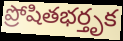
ప్రోషితభర్తృక